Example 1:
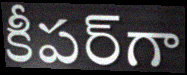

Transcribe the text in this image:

కీపర్‌గా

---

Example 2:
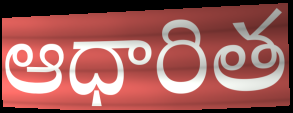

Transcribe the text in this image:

ఆధారిత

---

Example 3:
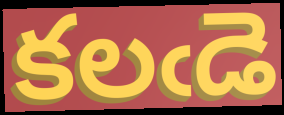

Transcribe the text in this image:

కలఁడె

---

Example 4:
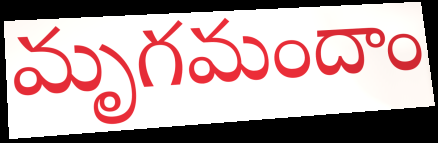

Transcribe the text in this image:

మృగమందాం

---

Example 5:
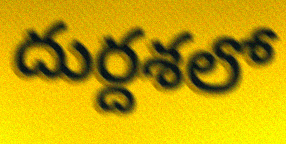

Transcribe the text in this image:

దుర్దశలో